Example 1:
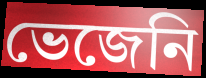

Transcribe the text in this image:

ভেজেনি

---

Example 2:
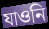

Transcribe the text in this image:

যাওনি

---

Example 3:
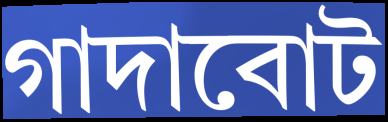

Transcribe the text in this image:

গাদাবোট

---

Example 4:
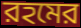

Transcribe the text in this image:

রহমের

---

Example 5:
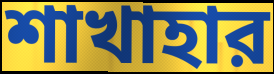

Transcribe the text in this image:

শাখাহার